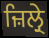
ਜ਼ਿਲ੍ਰੇ